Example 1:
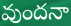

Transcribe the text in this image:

వుందనా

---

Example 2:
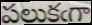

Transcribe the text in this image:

పలుకఁగా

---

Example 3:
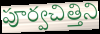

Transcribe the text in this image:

పూర్వచిత్తిని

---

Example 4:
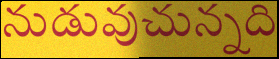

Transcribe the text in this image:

నుడువుచున్నది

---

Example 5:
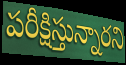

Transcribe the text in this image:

పరీక్షిస్తున్నారని